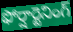
ఫోర్షార్టెనింగ్